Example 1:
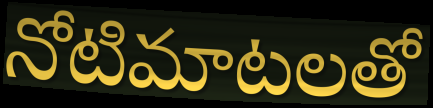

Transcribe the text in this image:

నోటిమాటలతో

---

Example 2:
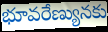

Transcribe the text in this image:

భూవరేణ్యునకు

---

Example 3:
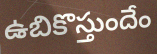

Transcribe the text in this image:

ఉబికొస్తుందేం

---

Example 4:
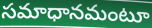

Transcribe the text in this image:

సమాధానమంటూ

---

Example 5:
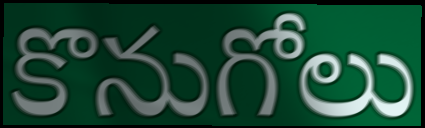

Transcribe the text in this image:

కొనుగోలు